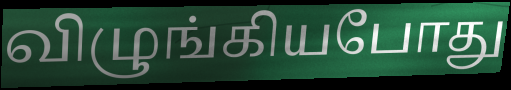
விழுங்கியபோது